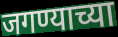
जगण्याच्या